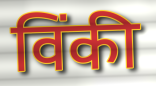
विंकी